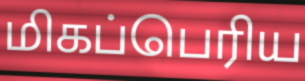
மிகப்பெரிய